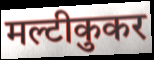
मल्टीकुकर